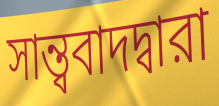
সান্ত্ববাদদ্বারা